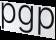
pgp